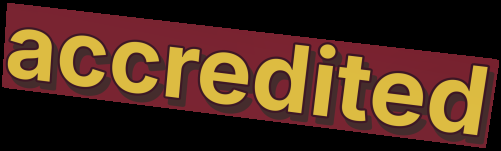
accredited